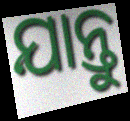
ଯାନ୍ତୁ